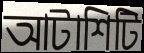
আটাশিটি